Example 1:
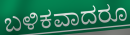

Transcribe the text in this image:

ಬಳಿಕವಾದರೂ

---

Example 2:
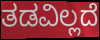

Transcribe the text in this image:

ತಡವಿಲ್ಲದೆ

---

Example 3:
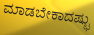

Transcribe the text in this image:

ಮಾಡಬೇಕಾದಷ್ಟು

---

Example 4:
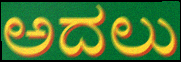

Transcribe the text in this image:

ಅದಲು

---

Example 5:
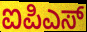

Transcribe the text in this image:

ಐಪಿಎಸ್